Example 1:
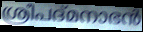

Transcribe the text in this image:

ശ്രീപദ്മനാഭൻ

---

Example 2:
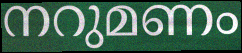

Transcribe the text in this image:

നറുമണം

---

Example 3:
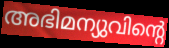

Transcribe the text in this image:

അഭിമന്യുവിന്റെ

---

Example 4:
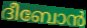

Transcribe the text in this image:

ദീബോൻ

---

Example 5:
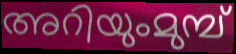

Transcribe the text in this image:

അറിയുംമുമ്പ്